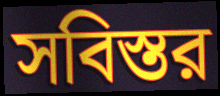
সবিস্তর